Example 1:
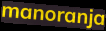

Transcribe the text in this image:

manoranja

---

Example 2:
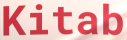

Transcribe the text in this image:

Kitab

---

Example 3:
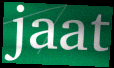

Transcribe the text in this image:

jaat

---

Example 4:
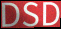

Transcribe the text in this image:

DSD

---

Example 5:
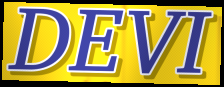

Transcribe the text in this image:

DEVI